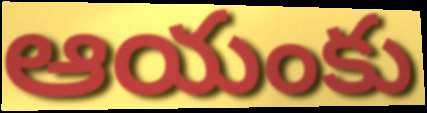
ఆయంకు